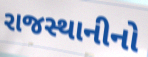
રાજસ્થાનીનો